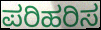
ಪರಿಹರಿಸ